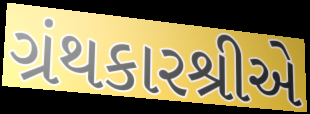
ગ્રંથકારશ્રીએ